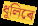
ধূলিৰে